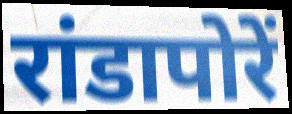
रांडापोरें